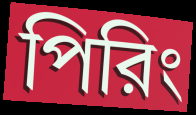
পিরিং